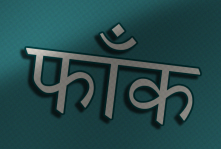
फाँक